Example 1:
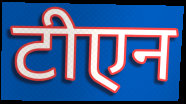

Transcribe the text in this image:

टीएन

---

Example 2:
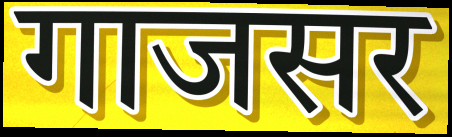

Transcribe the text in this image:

गाजसर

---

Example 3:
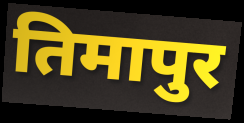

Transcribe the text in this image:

तिमापुर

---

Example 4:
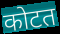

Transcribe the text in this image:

कोटत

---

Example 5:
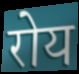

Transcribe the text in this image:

रोय